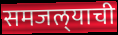
समजल्याची